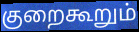
குறைகூறும்